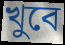
খুবে